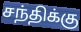
சந்திக்கு